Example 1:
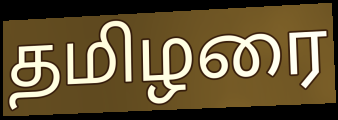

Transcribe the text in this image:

தமிழரை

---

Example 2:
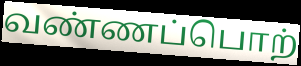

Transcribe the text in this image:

வண்ணப்பொற்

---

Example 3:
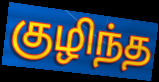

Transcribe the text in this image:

குழிந்த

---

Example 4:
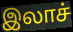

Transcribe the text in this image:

இலாச்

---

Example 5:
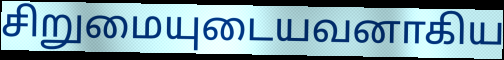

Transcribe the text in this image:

சிறுமையுடையவனாகிய